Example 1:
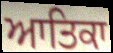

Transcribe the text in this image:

ਆਤਿਕਾ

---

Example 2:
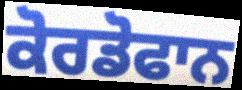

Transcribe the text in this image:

ਕੋਰਡੋਫਾਨ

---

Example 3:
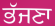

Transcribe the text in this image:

ਭੱਜਣਾ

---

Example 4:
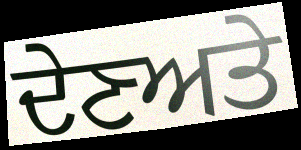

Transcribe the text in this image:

ਦੇਣਅਤੇ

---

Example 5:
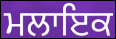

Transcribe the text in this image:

ਮਲਾਇਕ